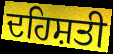
ਦਹਿਸ਼ਤੀ